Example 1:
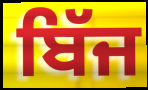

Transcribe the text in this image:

ਬਿੱਜ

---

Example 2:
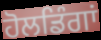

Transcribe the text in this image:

ਹੋਲਡਿੰਗਾਂ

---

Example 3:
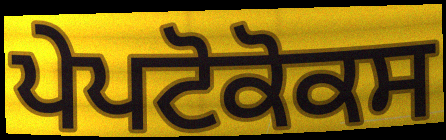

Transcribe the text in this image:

ਪੇਪਟੋਕੋਕਸ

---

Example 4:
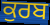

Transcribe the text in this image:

ਕੁਰਬ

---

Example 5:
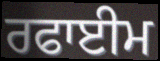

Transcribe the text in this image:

ਰਫਾਈਮ